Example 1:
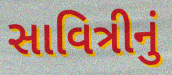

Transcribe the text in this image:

સાવિત્રીનું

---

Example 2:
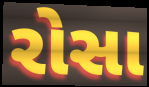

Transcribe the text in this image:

રોસા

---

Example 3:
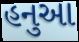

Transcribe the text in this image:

હનુઆ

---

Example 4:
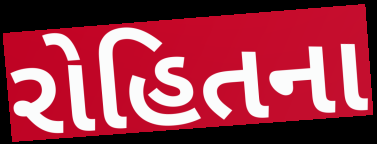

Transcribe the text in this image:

રોહિતના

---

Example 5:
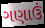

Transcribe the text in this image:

ગણાઉં